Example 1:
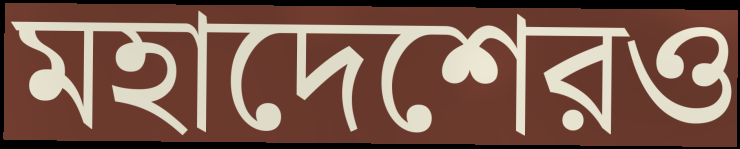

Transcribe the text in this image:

মহাদেশেরও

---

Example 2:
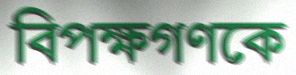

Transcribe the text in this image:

বিপক্ষগণকে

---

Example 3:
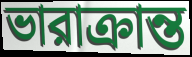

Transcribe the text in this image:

ভারাক্রান্ত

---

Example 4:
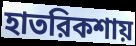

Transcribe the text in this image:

হাতরিকশায়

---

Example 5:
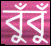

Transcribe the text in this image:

বুঁবুঁ